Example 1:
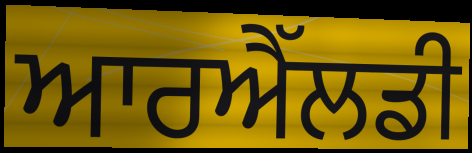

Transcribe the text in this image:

ਆਰਐੱਲਡੀ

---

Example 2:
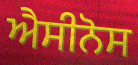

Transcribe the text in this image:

ਐਸੀਨੋਸ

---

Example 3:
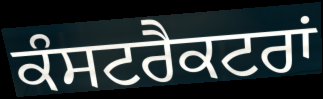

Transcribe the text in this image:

ਕੰਸਟਰੈਕਟਰਾਂ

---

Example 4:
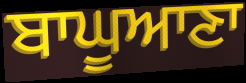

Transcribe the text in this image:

ਬਾਘੂਆਣਾ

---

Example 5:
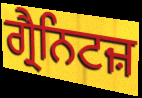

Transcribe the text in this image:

ਗ੍ਰੈਨਿਟਜ਼